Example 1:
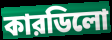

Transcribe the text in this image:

কারডিলো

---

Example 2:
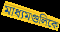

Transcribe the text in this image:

মাধ্যমগুলিকে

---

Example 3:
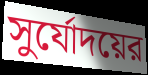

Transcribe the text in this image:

সুর্যোদয়ের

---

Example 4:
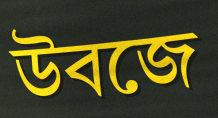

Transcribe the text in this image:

উবজে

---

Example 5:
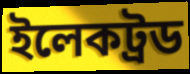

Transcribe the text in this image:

ইলেকট্রড